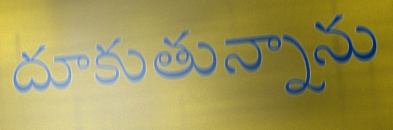
దూకుతున్నాను